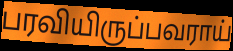
பரவியிருப்பவராய்